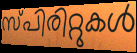
സ്പിരിറ്റുകൾ